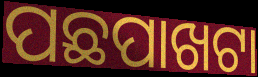
ପଛପାଖଟା